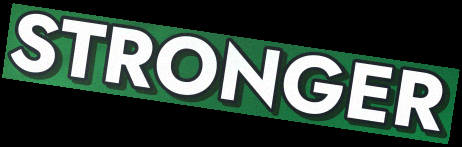
STRONGER